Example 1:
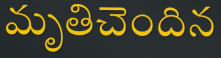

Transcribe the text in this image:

మృతిచెందిన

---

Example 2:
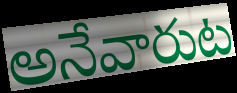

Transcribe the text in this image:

అనేవారుట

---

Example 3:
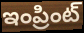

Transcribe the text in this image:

ఇంప్రింట్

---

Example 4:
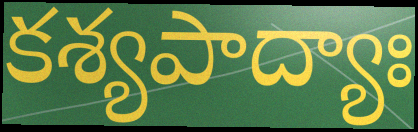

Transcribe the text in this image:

కశ్యపాద్యాః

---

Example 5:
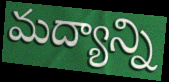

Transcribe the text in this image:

మద్యాన్ని